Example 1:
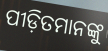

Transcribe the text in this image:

ପୀଡ଼ିତମାନଙ୍କୁ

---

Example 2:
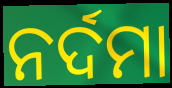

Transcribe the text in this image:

ନର୍ଦମା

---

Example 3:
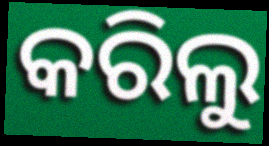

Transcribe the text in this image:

କରିଲୁ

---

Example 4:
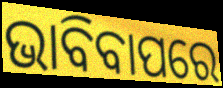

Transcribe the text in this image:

ଭାବିବାପରେ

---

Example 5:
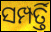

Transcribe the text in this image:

ସମ୍ପର୍ତ୍ତି